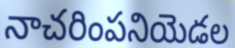
నాచరింపనియెడల